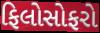
ફિલોસોફરો